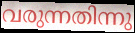
വരുന്നതിന്നു